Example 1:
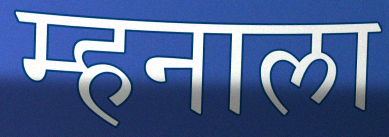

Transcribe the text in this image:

म्हनाला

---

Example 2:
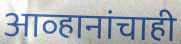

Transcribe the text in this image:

आव्हानांचाही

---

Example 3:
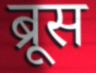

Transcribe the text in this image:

ब्रूस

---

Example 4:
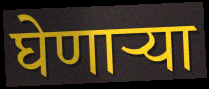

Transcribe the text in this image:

घेणाऱ्या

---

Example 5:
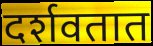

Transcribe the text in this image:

दर्शवतात